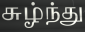
சுழ்ந்து